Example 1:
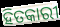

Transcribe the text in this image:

ହିତକାରୀ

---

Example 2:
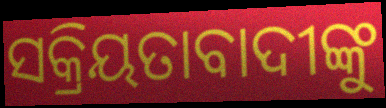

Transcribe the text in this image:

ସକ୍ରିୟତାବାଦୀଙ୍କୁ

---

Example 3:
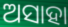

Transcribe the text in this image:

ଅସାହା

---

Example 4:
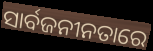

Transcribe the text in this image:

ସାର୍ବଜନୀନତାରେ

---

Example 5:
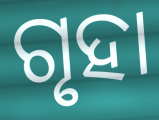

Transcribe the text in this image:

ଗୃହା